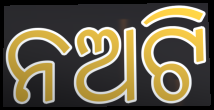
ନଅଟି